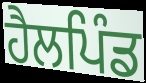
ਹੈਲਪਿੰਡ